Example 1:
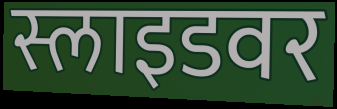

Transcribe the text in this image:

स्‍लाइडवर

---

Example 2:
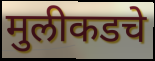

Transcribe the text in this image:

मुलीकडचे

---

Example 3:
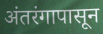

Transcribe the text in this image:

अंतरंगापासून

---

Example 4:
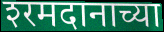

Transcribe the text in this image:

श्रमदानाच्या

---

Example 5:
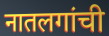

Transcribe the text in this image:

नातलगांची